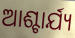
ଆଶ୍ଚାର୍ଯ୍ୟ